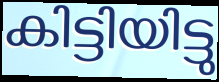
കിട്ടിയിട്ടു